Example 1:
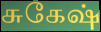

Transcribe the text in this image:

சுகேஷ்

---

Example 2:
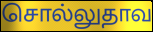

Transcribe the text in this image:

சொல்லுதாவ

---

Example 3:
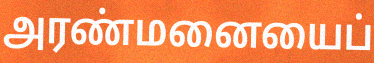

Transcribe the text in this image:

அரண்மனையைப்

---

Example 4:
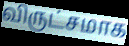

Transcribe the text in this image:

விருட்சமாக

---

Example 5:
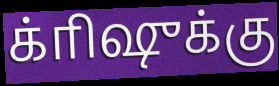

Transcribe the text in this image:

க்ரிஷுக்கு